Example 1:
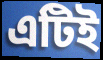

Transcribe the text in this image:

এটিই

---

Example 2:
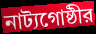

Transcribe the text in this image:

নাট্যগোষ্ঠীর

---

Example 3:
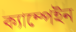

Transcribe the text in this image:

ক্যাম্পেইন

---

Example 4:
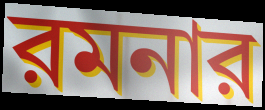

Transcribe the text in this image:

রমনার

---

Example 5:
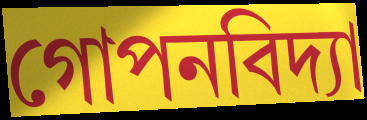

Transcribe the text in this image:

গোপনবিদ্যা